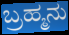
ಬ್ರಹ್ಮನು